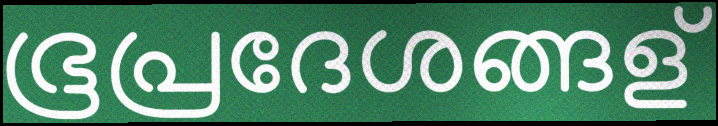
ഭൂപ്രദേശങ്ങള്